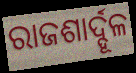
ରାଜଶାର୍ଦ୍ଦୂଳ